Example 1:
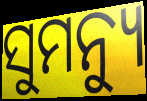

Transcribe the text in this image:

ସୁମନ୍ୟୁ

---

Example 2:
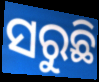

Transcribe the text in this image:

ସରୁଛି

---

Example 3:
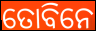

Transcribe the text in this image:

ତୋବିନେ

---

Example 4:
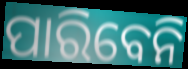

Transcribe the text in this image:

ପାରିବେନି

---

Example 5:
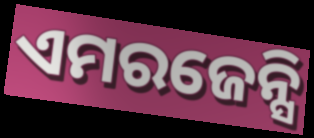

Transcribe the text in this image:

ଏମରଜେନ୍ସି